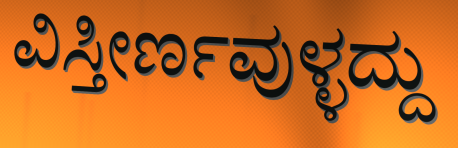
ವಿಸ್ತೀರ್ಣವುಳ್ಳದ್ದು